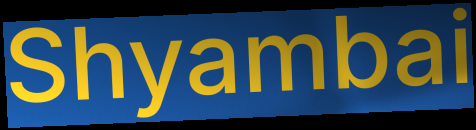
Shyambai